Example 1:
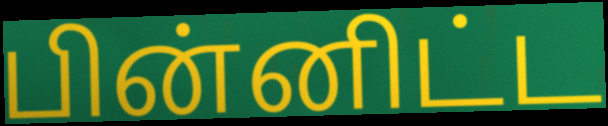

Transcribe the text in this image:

பின்னிட்ட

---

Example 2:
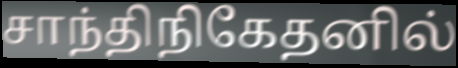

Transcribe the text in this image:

சாந்திநிகேதனில்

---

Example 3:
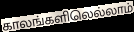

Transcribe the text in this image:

காலங்களிலெல்லாம்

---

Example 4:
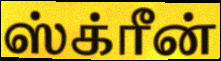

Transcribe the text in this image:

ஸ்க்ரீன்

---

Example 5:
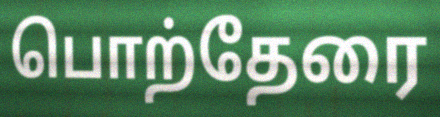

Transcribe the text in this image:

பொற்தேரை